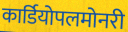
कार्डियोपलमोनरी